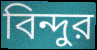
বিন্দুর